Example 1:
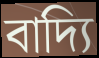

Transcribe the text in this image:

বাদ্যি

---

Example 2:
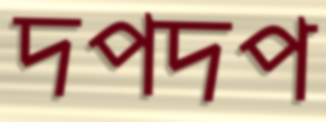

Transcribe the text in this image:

দপদপ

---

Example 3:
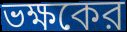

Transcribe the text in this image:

ভক্ষকের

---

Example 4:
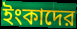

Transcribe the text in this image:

ইংকাদের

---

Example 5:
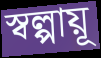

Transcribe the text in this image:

স্বল্পায়ূ